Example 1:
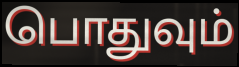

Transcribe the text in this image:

பொதுவும்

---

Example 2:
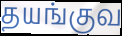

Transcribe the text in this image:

தயங்குவ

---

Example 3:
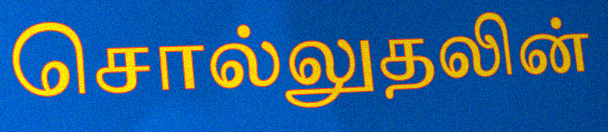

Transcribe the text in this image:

சொல்லுதலின்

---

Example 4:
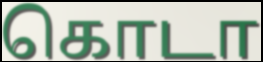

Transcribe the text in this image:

கொடா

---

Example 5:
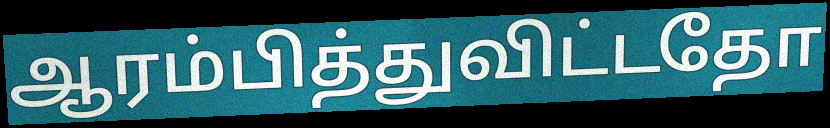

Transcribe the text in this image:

ஆரம்பித்துவிட்டதோ